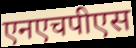
एनएचपीएस